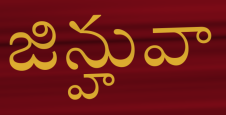
జిన్హువా